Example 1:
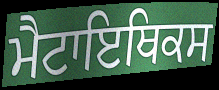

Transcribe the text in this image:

ਮੈਟਾਇਥਿਕਸ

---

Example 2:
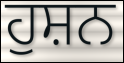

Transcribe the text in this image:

ਹੁਸ਼ਨ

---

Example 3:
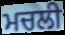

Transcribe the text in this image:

ਮਚਲੀ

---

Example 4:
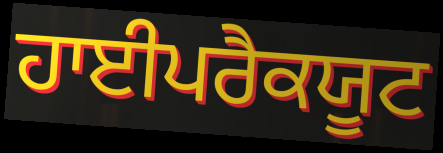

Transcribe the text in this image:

ਹਾਈਪਰੈਕਯੂਟ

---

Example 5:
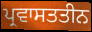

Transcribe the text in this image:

ਪ੍ਰਵਾਸਤਤੀਨ